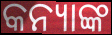
କନ୍ୟାଙ୍କ